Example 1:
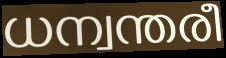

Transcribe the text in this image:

ധന്വന്തരീ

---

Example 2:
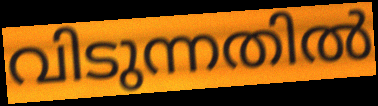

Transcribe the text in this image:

വിടുന്നതിൽ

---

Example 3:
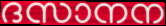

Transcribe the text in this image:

ദസാനന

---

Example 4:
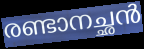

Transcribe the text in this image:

രണ്ടാനച്ഛൻ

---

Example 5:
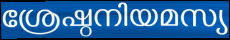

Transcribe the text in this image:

ശ്രേഷ്ഠനിയമസ്യ